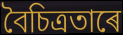
বৈচিত্ৰতাৰে